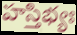
హస్తిభ్యః